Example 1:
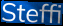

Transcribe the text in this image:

Steffi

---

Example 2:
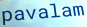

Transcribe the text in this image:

pavalam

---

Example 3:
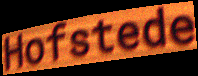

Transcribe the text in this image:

Hofstede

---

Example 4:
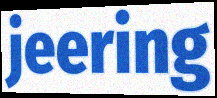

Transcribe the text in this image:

jeering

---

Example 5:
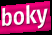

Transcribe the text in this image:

boky